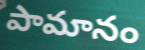
పామానం